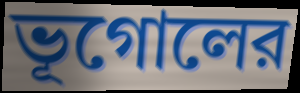
ভূগোলের